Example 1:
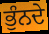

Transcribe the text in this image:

ਭੁੰਨਦੇ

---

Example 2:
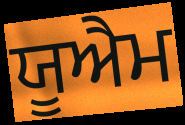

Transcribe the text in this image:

ਯੂਐਮ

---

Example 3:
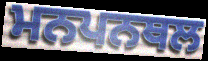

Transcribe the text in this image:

ਮਨਪਨਥਲ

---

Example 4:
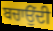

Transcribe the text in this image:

ਬਚਾਉਂਦੀ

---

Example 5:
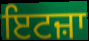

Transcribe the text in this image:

ਇਟਜ਼ਾ